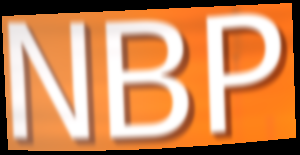
NBP